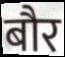
बौर